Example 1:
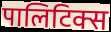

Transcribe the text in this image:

पालिटिक्स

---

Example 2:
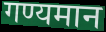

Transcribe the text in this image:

गण्यमान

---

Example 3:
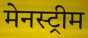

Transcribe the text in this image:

मेनस्‍ट्रीम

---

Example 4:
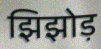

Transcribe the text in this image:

झिझोड़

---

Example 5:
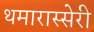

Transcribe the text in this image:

थमारास्सेरी